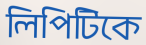
লিপিটিকে